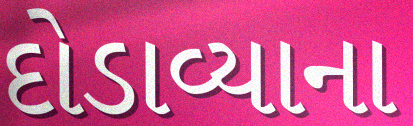
દોડાવ્યાના